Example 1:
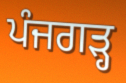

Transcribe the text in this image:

ਪੰਜਗੜ੍ਹ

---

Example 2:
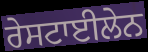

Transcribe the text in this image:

ਰੇਸਟਾਈਲੇਨ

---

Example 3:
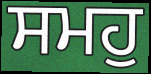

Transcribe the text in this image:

ਸਮਹੁ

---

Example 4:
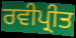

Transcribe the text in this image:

ਰਵੀਪ੍ਰੀਤ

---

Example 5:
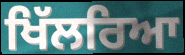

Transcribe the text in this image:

ਖਿੱਲਰਿਆ